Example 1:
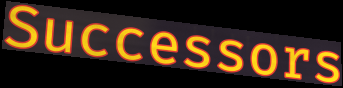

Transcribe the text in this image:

Successors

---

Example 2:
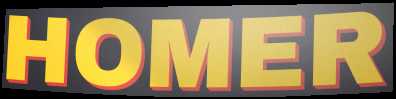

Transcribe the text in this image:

HOMER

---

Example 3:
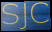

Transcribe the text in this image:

SJC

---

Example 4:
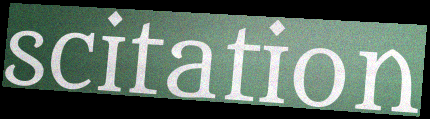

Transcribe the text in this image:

scitation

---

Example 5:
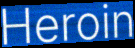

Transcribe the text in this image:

Heroin